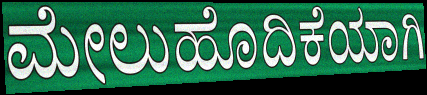
ಮೇಲುಹೊದಿಕೆಯಾಗಿ